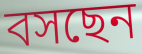
বসছেন